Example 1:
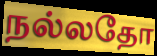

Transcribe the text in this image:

நல்லதோ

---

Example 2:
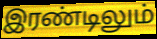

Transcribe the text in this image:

இரண்டிலும்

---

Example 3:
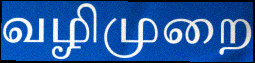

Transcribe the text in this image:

வழிமுறை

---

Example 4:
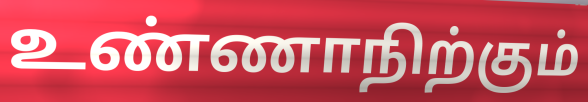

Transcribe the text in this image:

உண்ணாநிற்கும்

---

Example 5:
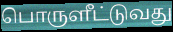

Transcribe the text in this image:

பொருளீட்டுவது